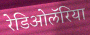
रेडिओलॅरिया